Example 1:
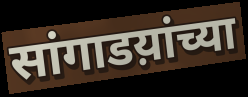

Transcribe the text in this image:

सांगाडय़ांच्या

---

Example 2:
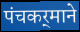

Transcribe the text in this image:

पंचकर्माने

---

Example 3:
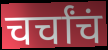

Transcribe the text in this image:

चर्चांचं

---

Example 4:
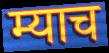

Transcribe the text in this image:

म्याच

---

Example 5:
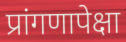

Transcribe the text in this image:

प्रांगणापेक्षा